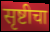
सृष्टीचा